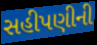
સહીપણીની